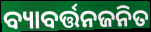
ବ୍ୟାବର୍ତ୍ତନଜନିତ